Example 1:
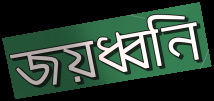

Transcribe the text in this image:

জয়ধ্বনি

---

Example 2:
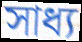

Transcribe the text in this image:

সাধ্য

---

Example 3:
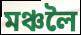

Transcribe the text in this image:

মঞ্চলৈ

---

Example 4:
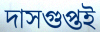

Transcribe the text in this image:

দাসগুপ্তই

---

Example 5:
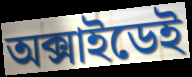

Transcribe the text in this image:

অক্সাইডেই